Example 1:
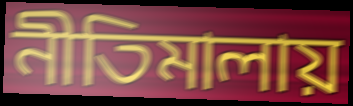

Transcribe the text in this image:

নীতিমালায়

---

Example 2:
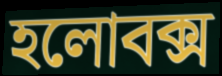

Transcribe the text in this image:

হলোবক্স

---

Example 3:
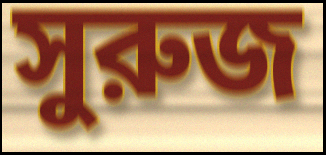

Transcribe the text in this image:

সুরুজ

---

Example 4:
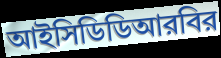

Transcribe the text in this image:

আইসিডিডিআরবির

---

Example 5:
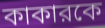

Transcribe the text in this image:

কাকারকে